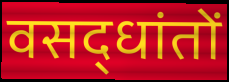
वसद्धांतों